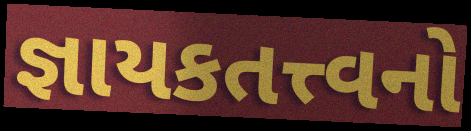
જ્ઞાયકતત્ત્વનો